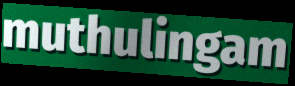
muthulingam